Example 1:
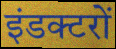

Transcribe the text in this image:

इंडक्टरों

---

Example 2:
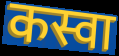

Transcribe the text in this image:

कस्वा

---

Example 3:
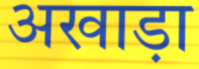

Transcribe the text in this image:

अखाड़ा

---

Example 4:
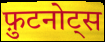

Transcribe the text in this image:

फ़ुटनोट्स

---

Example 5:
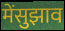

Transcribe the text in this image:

मेंसुझाव